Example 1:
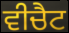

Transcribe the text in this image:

ਵੀਚੈਟ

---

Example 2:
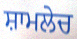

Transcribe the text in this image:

ਸ਼ਾਮਲੇਚ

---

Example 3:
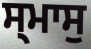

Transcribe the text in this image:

ਸ੍ਮਾਸੁ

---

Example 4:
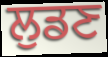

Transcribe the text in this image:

ਲੁਡਣ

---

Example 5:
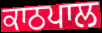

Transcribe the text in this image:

ਕਾਠਪਾਲ